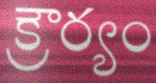
క్రౌర్యం